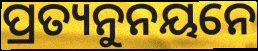
ପ୍ରତ୍ୟନୁନୟନେ